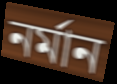
নর্মান